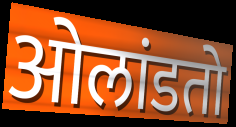
ओलांडतो